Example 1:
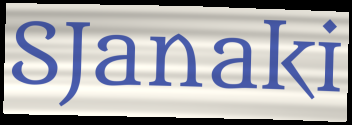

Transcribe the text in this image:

SJanaki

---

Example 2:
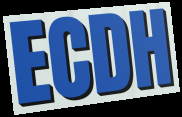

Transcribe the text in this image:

ECDH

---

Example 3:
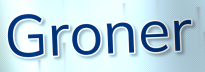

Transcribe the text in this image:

Groner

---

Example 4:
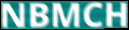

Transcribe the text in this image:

NBMCH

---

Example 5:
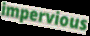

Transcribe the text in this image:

impervious